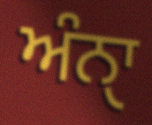
ਅੰਨੑਾ